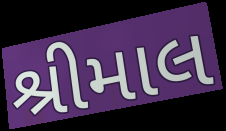
શ્રીમાલ